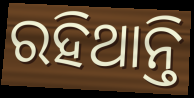
ରହିଥାନ୍ତି